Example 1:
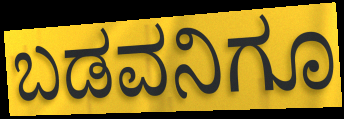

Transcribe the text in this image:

ಬಡವನಿಗೂ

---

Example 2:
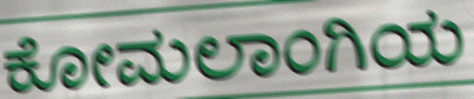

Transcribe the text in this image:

ಕೋಮಲಾಂಗಿಯ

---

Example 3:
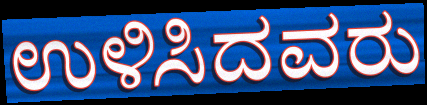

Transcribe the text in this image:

ಉಳಿಸಿದವರು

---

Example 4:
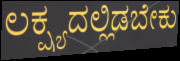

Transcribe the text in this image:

ಲಕ್ಷ್ಯದಲ್ಲಿಡಬೇಕು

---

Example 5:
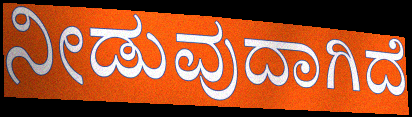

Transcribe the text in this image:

ನೀಡುವುದಾಗಿದೆ